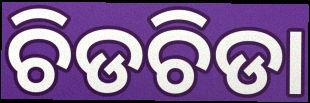
ଚିଡଚିଡା